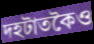
দহটাতকৈও